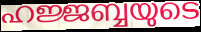
ഹജ്ജബ്ബയുടെ